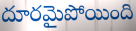
దూరమైపోయింది